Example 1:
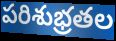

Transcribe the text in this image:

పరిశుభ్రతల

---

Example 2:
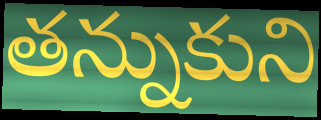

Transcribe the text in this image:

తన్నుకుని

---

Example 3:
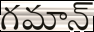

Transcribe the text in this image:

గమాన్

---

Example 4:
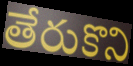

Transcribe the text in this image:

తేరుకొని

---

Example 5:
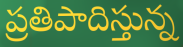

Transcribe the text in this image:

ప్రతిపాదిస్తున్న